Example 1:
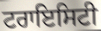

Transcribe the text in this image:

ਟਰਾਇਸਿਟੀ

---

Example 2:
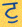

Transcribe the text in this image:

ਟੁ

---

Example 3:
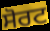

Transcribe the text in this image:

ਸੋਰਟ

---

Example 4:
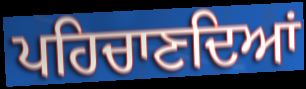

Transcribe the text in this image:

ਪਹਿਚਾਣਦਿਆਂ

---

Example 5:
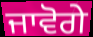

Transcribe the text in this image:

ਜਾਵੋਗੇ